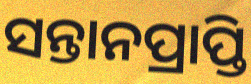
ସନ୍ତାନପ୍ରାପ୍ତି